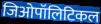
जिओपॉलिटिकल